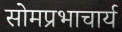
सोमप्रभाचार्य